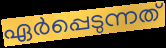
ഏർപ്പെടുന്നത്